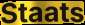
Staats